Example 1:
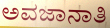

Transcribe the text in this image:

ಅವಜಾನಾತಿ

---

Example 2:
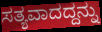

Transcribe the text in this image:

ಸತ್ಯವಾದದ್ದನ್ನು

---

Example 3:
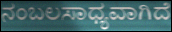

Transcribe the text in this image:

ನಂಬಲಸಾಧ್ಯವಾಗಿದೆ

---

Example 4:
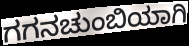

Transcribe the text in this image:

ಗಗನಚುಂಬಿಯಾಗಿ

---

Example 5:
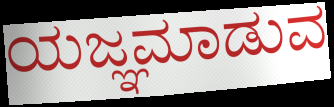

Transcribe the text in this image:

ಯಜ್ಞಮಾಡುವ